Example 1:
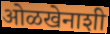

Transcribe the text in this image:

ओळखेनाशी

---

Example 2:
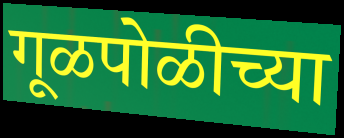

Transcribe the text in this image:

गूळपोळीच्या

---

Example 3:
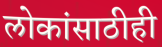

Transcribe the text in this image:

लोकांसाठीही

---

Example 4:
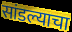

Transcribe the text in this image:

सांडल्याचा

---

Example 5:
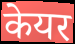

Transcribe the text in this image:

केयर